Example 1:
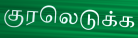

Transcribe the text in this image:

குரலெடுக்க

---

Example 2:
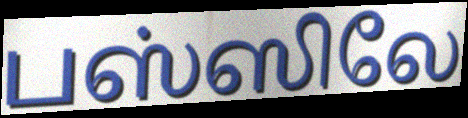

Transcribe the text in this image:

பஸ்ஸிலே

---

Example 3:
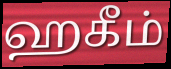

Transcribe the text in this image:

ஹகீம்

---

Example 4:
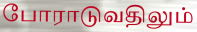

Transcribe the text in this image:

போராடுவதிலும்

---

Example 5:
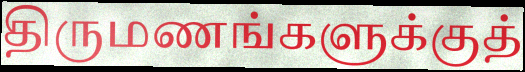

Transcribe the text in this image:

திருமணங்களுக்குத்